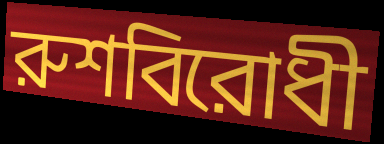
রুশবিরোধী